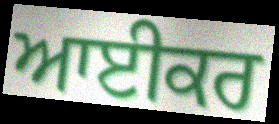
ਆਈਕਰ